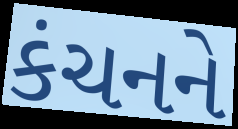
કંચનને